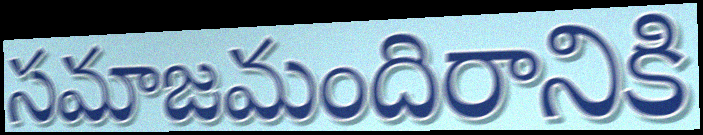
సమాజమందిరానికి